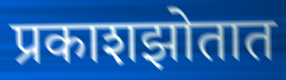
प्रकाशझोतात